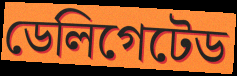
ডেলিগেটেড